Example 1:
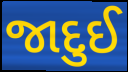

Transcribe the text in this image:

જાદુઈ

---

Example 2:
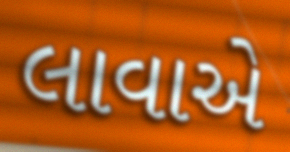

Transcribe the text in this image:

લાવાએ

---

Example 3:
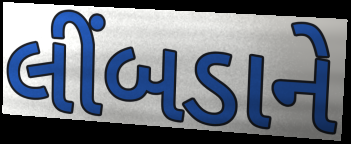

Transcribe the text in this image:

લીંબડાને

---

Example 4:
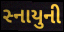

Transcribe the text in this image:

સ્નાયુની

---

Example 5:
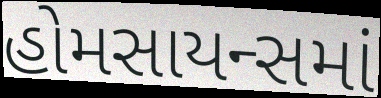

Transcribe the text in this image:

હોમસાયન્સમાં